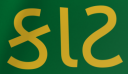
કાટ